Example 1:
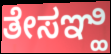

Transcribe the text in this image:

ತೇಸಞ್ಹಿ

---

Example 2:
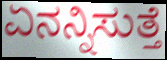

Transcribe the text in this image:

ಏನನ್ನಿಸುತ್ತೆ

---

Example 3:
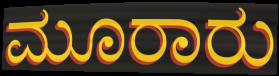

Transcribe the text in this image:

ಮೂರಾರು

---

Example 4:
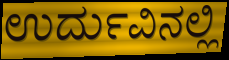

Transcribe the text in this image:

ಉರ್ದುವಿನಲ್ಲಿ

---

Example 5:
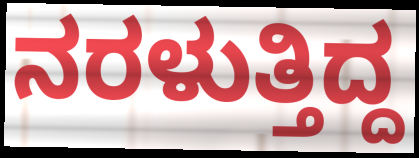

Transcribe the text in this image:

ನರಳುತ್ತಿದ್ದ